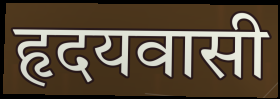
हृदयवासी